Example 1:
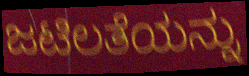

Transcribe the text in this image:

ಜಟಿಲತೆಯನ್ನು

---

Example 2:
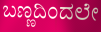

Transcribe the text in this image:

ಬಣ್ಣದಿಂದಲೇ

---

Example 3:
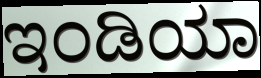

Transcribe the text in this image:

ಇಂಡಿಯಾ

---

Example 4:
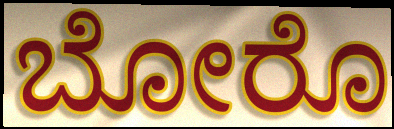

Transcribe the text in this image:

ಬೋರೊ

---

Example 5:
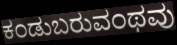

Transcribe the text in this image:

ಕಂಡುಬರುವಂಥವು